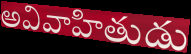
అవివాహితుడు